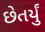
છેતર્યું